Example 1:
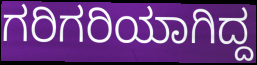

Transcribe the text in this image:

ಗರಿಗರಿಯಾಗಿದ್ದ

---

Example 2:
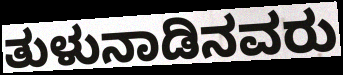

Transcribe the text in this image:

ತುಳುನಾಡಿನವರು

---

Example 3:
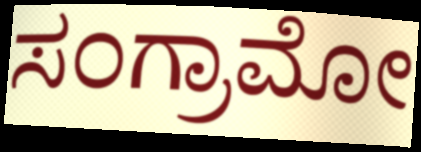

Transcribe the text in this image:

ಸಂಗ್ರಾಮೋ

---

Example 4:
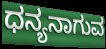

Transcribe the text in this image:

ಧನ್ಯನಾಗುವ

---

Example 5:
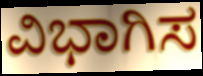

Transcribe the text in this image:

ವಿಭಾಗಿಸ